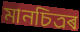
মানচিত্ৰৰ